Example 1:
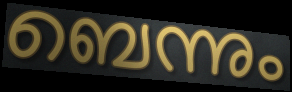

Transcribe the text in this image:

ബെന്നും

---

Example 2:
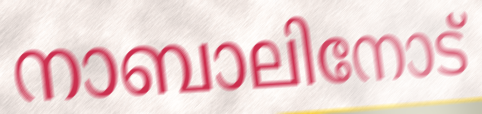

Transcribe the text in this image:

നാബാലിനോട്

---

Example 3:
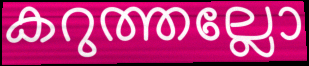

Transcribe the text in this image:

കറുത്തല്ലോ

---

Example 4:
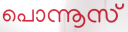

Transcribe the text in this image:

പൊന്നൂസ്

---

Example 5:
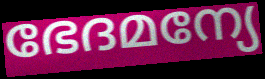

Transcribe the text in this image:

ഭേദമന്യേ